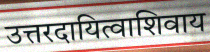
उत्तरदायित्वाशिवाय